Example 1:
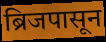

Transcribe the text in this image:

ब्रिजपासून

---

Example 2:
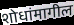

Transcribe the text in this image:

शोधांमागील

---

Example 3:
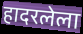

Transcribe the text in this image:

हादरलेला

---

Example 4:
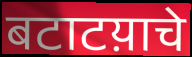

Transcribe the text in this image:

बटाटय़ाचे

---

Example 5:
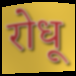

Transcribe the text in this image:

रोधू